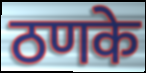
ठणके